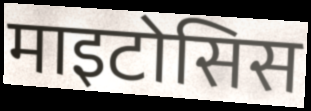
माइटोसिस